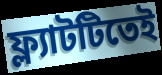
ফ্ল্যাটটিতেই